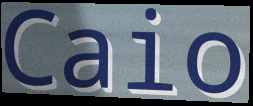
Caio